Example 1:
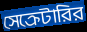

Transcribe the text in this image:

সেক্রেটারির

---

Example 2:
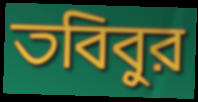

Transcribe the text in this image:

তবিবুর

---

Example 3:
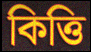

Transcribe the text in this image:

কিত্তি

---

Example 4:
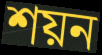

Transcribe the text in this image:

শয়ন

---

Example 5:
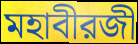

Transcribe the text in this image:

মহাবীরজী